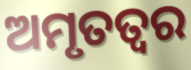
ଅମୃତତ୍ଵର